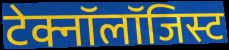
टेक्नॉलॉजिस्ट